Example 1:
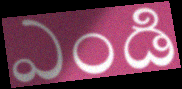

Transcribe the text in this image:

ఎండి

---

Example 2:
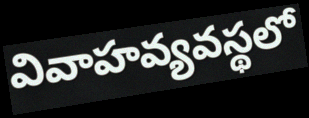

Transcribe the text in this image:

వివాహవ్యవస్థలో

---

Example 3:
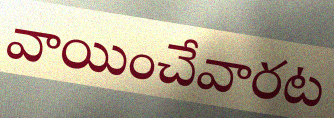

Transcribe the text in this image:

వాయించేవారట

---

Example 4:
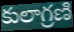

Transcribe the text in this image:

కులాగ్రణి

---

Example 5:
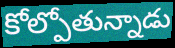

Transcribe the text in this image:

కోల్పోతున్నాడు